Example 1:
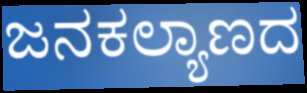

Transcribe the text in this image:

ಜನಕಲ್ಯಾಣದ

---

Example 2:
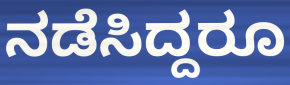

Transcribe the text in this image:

ನಡೆಸಿದ್ದರೂ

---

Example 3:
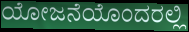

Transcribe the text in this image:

ಯೋಜನೆಯೊಂದರಲ್ಲಿ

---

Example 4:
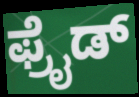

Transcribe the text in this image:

ಫ್ರೈಡ್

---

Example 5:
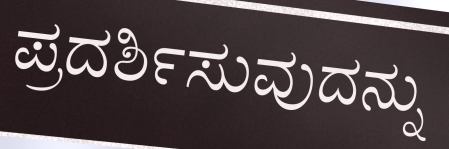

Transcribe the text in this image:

ಪ್ರದರ್ಶಿಸುವುದನ್ನು